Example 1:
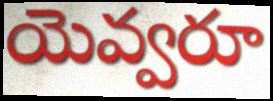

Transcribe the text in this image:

యెవ్వరూ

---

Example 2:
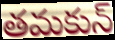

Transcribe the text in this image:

తమకున్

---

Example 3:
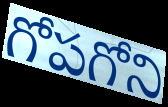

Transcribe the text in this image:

గోపగోని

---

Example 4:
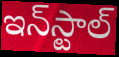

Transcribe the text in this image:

ఇన్‌స్టాల్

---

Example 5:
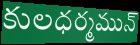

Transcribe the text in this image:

కులధర్మమున్